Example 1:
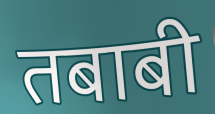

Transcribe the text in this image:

तबाबी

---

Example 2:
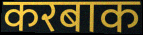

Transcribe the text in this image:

करबाक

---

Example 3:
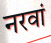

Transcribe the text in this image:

नरवां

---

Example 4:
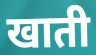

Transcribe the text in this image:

खाती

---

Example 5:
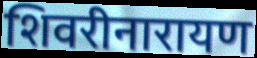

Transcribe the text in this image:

शिवरीनारायण